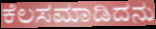
ಕೆಲಸಮಾಡಿದನು